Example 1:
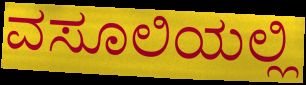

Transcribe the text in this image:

ವಸೂಲಿಯಲ್ಲಿ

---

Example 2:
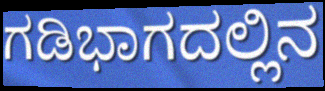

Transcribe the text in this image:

ಗಡಿಭಾಗದಲ್ಲಿನ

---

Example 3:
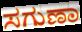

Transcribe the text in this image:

ಸಗುಣಾ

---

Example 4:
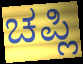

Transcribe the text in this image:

ಚಪ್ಲಿ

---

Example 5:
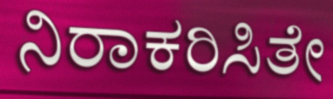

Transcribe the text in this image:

ನಿರಾಕರಿಸಿತೇ